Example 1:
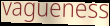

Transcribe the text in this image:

vagueness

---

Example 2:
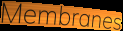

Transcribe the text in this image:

Membranes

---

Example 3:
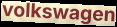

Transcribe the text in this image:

volkswagen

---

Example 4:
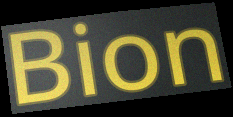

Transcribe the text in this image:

Bion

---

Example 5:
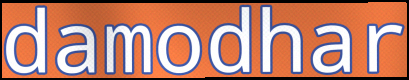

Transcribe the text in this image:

damodhar